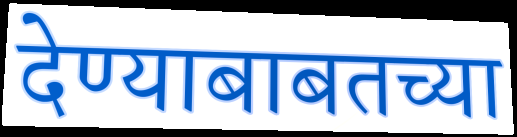
देण्याबाबतच्या